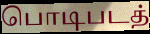
பொடிபடத்